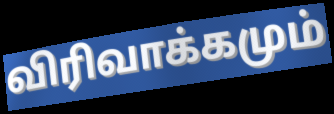
விரிவாக்கமும்